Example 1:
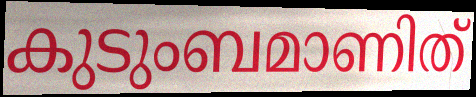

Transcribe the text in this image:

കുടുംബമാണിത്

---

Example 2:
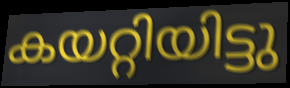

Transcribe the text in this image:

കയറ്റിയിട്ടു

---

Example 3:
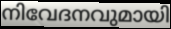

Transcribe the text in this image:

നിവേദനവുമായി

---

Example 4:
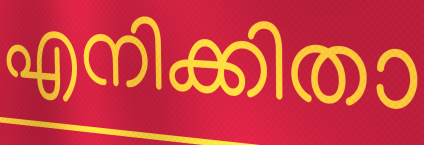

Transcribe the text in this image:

എനിക്കിതാ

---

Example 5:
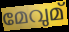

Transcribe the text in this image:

മേവുമ്